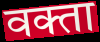
वक्ता